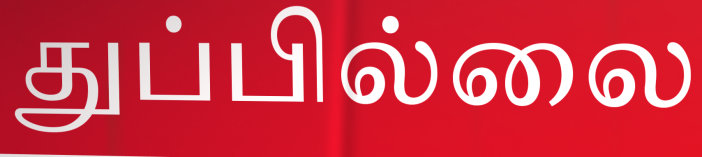
துப்பில்லை